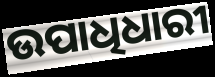
ଉପାଧିଧାରୀ